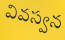
వివస్వన